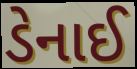
ડેનાઈ